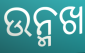
ଉନ୍ମଖ